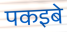
पकइबे